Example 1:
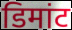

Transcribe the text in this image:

डिमांट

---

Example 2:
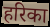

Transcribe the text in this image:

हरिका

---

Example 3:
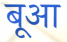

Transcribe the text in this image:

बूआ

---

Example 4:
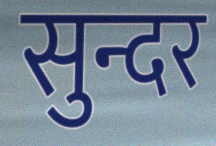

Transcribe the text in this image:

सुन्दर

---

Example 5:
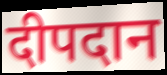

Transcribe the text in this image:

दीपदान